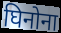
घिनोना